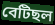
বেটিছল